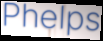
Phelps